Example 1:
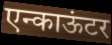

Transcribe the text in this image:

एन्काऊंटर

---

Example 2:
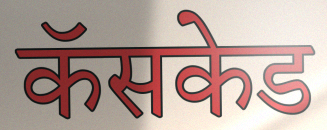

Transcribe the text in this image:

कॅसकेड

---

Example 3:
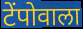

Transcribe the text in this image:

टेंपोवाला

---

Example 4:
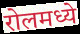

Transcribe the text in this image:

रोलमध्ये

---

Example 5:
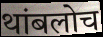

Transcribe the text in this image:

थांबलोच